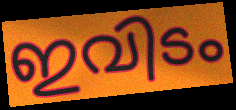
ഇവിടം